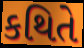
કથિતે